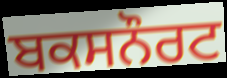
ਬਕਸਨੌਰਟ